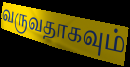
வருவதாகவும்